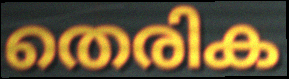
തെരിക